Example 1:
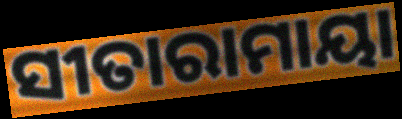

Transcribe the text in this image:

ସୀତାରାମାୟା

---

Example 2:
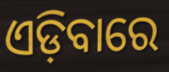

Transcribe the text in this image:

ଏଡ଼ିବାରେ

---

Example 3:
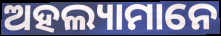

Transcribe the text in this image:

ଅହଲ୍ୟାମାନେ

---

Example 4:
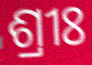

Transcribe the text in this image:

ଶ୍ରୀଃ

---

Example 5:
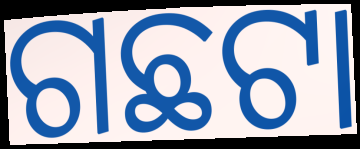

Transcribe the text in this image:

ଗଛଟା